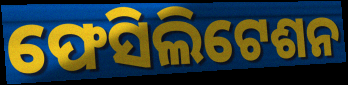
ଫେସିଲିଟେଶନ